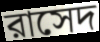
রাসেদ